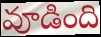
వూడింది